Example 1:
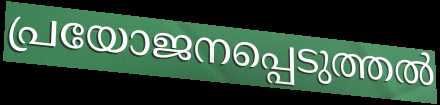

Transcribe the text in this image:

പ്രയോജനപ്പെടുത്തൽ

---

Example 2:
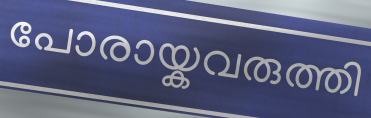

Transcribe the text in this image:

പോരായ്കവരുത്തി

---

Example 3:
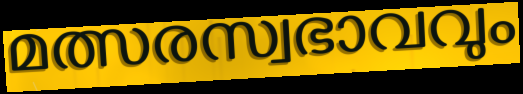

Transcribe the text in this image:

മത്സരസ്വഭാവവും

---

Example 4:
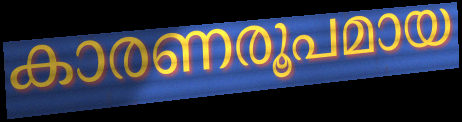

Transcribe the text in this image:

കാരണരൂപമായ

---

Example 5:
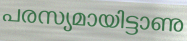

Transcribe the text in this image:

പരസ്യമായിട്ടാണു